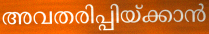
അവതരിപ്പിയ്ക്കാൻ